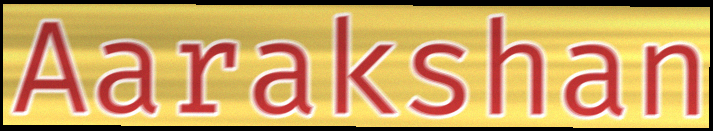
Aarakshan